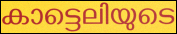
കാട്ടെലിയുടെ